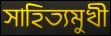
সাহিত্যমুখী